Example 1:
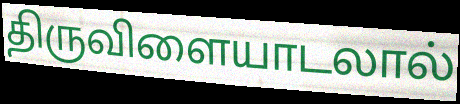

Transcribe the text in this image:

திருவிளையாடலால்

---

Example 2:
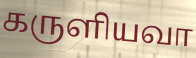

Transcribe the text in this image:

கருளியவா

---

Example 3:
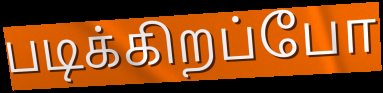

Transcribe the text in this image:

படிக்கிறப்போ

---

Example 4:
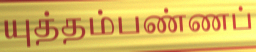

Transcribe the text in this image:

யுத்தம்பண்ணப்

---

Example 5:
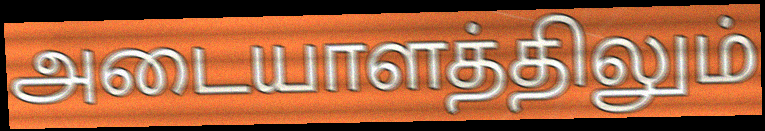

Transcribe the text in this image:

அடையாளத்திலும்